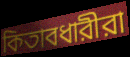
কিতাবধারীরা